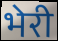
भेरी